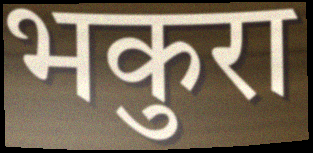
भकुरा